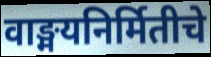
वाङ्मयनिर्मितीचे